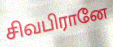
சிவபிரானே